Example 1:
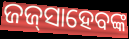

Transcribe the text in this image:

ଜଜ୍‍ସାହେବଙ୍କ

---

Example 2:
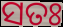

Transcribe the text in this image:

ସତଃ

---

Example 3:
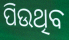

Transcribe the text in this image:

ପିଉଥିବ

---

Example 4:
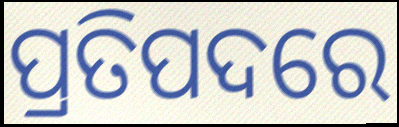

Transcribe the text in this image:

ପ୍ରତିପଦରେ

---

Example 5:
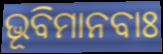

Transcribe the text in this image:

ଭୂବିମାନବାଃ